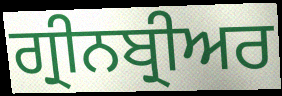
ਗ੍ਰੀਨਬ੍ਰੀਅਰ